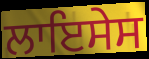
ਲਾਇਸੇਸ